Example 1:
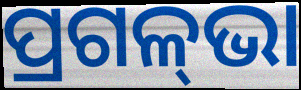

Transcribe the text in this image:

ପ୍ରଗଳ୍‌ଭା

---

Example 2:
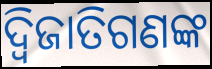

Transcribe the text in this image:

ଦ୍ୱିଜାତିଗଣଙ୍କ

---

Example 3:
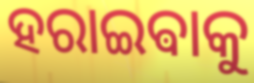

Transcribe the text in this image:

ହରାଇଵାକୁ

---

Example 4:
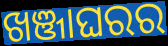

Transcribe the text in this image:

ଖଞ୍ଜାଘରର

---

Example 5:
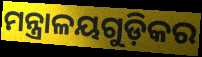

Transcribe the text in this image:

ମନ୍ତ୍ରାଳୟଗୁଡ଼ିକର